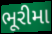
ભૂરીમા